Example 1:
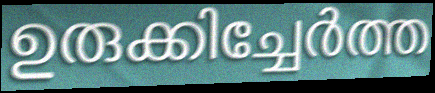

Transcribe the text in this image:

ഉരുക്കിച്ചേർത്ത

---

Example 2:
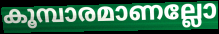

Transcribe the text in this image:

കൂമ്പാരമാണല്ലോ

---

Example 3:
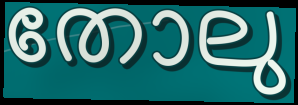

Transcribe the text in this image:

തോലു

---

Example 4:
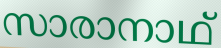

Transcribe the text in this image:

സാരാനാഥ്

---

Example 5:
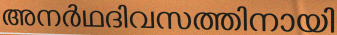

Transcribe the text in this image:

അനർഥദിവസത്തിനായി